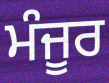
ਮੰਜੂਰ